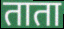
ताता